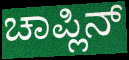
ಚಾಪ್ಲಿನ್